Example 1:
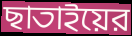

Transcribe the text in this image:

ছাতাইয়ের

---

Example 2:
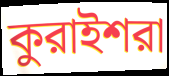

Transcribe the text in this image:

কুরাইশরা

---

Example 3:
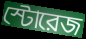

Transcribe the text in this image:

স্টোরেজ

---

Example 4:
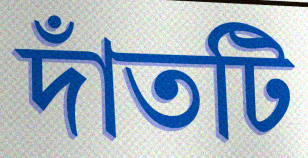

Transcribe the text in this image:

দাঁতটি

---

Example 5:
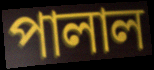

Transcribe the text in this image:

পালাল